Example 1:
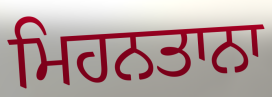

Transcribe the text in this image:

ਮਿਹਨਤਾਨਾ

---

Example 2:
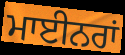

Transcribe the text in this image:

ਮਾਈਨਰਾਂ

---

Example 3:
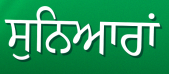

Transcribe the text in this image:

ਸੁਨਿਆਰਾਂ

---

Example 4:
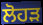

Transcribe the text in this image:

ਲੋਹੜ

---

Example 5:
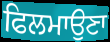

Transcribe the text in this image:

ਫਿਲਮਾਉਣਾ